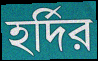
হর্দির